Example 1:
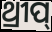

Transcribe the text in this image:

ଥ୍ରୀପ୍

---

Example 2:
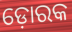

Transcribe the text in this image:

ଡ଼ୋରକ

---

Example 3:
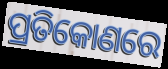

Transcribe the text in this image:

ପ୍ରତିକୋଣରେ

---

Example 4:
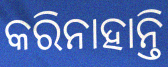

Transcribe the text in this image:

କରିନାହାନ୍ତି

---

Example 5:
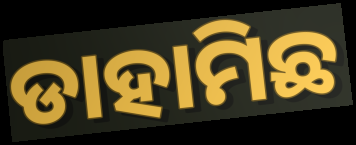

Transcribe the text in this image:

ଡାହାମିଛ